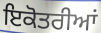
ਇਕੋਤਰੀਆਂ